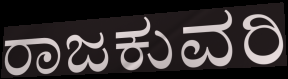
ರಾಜಕುವರಿ